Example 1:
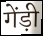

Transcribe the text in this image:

गेंड़ी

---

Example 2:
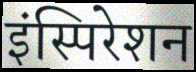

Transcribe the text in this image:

इंस्पिरेशन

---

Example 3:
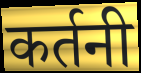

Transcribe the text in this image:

कर्तनी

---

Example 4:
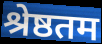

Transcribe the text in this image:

श्रेष्ठतम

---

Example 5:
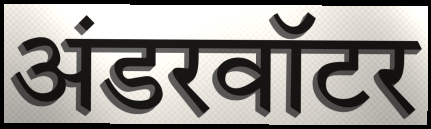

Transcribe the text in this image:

अंडरवॉटर